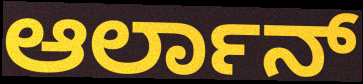
ಆರ್ಲಾನ್